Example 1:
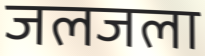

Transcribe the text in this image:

जलजला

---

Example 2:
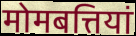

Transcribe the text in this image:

मोमबत्तियां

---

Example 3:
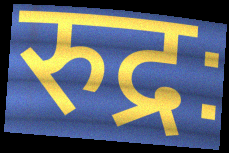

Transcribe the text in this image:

रुद्रः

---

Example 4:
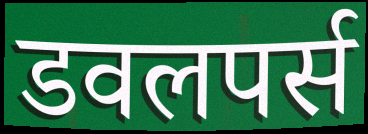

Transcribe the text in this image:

डवलपर्स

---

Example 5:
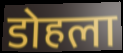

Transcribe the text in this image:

डोहला